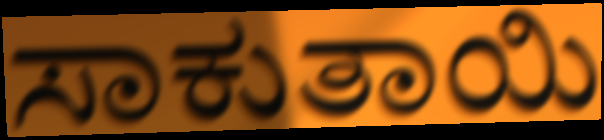
ಸಾಕುತಾಯಿ